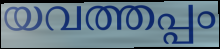
യവത്തപ്പം